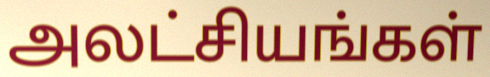
அலட்சியங்கள்